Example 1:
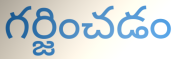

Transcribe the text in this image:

గర్జించడం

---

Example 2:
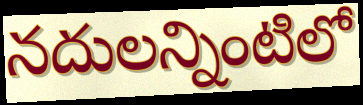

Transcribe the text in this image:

నదులన్నింటిలో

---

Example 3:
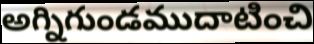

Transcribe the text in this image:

అగ్నిగుండముదాటించి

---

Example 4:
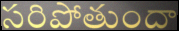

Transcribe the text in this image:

సరిపోతుందా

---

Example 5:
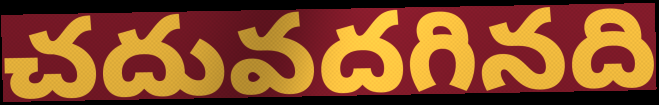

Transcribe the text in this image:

చదువదగినది